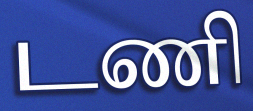
டணி